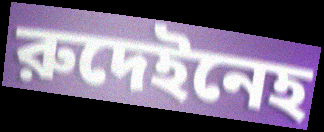
রুদেইনেহ